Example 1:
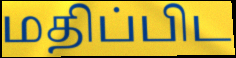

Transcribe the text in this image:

மதிப்பிட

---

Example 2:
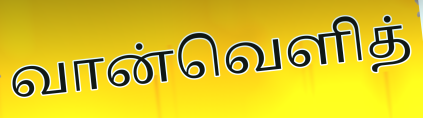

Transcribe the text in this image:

வான்வெளித்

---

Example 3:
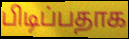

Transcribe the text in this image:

பிடிப்பதாக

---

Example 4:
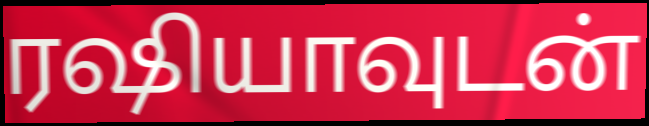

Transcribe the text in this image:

ரஷியாவுடன்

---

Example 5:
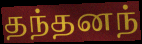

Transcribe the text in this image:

தந்தனந்